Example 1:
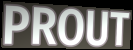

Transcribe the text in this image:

PROUT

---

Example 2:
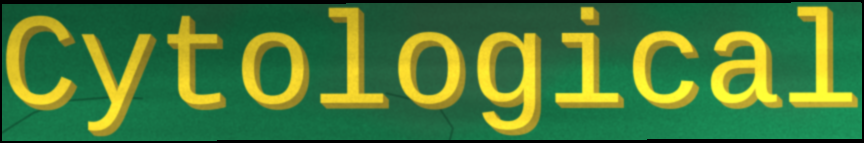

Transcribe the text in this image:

Cytological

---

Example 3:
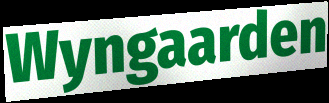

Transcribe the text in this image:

Wyngaarden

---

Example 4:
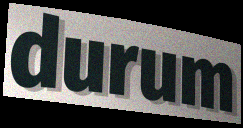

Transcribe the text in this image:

durum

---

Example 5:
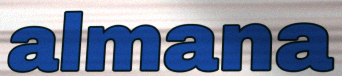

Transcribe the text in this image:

almana